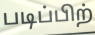
படிப்பிற்